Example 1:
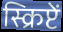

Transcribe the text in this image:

स्क्रिप्टें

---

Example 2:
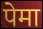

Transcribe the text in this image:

पेमा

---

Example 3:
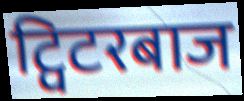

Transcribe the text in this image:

ट्विटरबाज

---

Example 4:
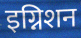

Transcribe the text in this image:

इग्निशन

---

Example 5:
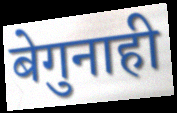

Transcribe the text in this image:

बेगुनाही